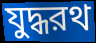
যুদ্ধরথ